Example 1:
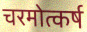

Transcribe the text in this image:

चरमोत्कर्ष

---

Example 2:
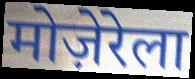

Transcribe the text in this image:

मोज़ेरेला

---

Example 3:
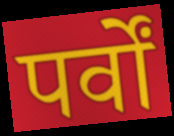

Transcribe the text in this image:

पर्वों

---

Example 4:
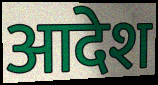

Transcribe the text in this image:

आदेश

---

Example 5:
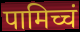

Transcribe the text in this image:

पामिच्चं